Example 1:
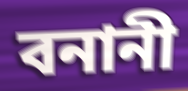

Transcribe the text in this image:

বনানী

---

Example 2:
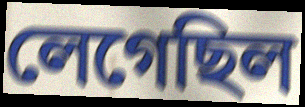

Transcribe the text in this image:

লেগেছিল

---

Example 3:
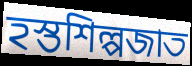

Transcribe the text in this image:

হস্তশিল্পজাত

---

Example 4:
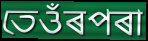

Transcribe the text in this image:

তেওঁৰপৰা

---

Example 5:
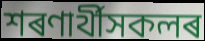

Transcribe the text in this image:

শৰণাৰ্থীসকলৰ